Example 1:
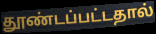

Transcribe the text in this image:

தூண்டப்பட்டதால்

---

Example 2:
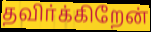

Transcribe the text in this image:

தவிர்க்கிறேன்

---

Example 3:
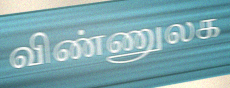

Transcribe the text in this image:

விண்ணுலக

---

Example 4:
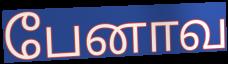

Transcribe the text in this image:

பேனாவ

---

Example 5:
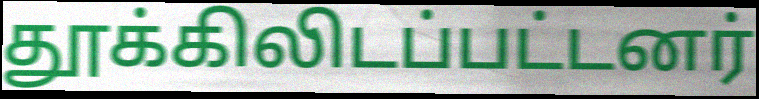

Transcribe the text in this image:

தூக்கிலிடப்பட்டனர்